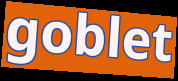
goblet